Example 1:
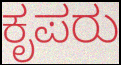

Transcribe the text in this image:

ಕೃಪರು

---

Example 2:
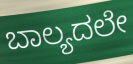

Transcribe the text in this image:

ಬಾಲ್ಯದಲೇ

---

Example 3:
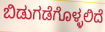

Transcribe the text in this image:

ಬಿಡುಗಡೆಗೊಳ್ಳಲಿದೆ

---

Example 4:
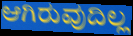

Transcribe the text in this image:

ಆಗಿರುವುದಿಲ್ಲ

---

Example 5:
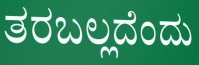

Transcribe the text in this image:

ತರಬಲ್ಲದೆಂದು